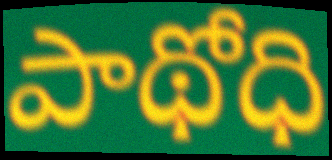
పాథోధి